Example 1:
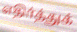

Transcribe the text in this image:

எதிர்த்துக்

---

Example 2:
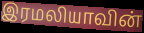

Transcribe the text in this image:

இரமலியாவின்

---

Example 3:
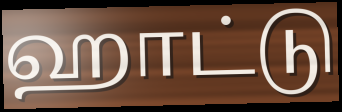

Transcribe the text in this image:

ஹாட்டு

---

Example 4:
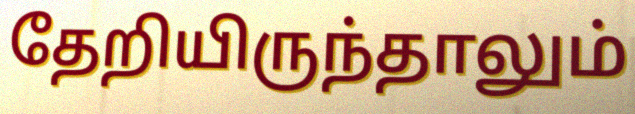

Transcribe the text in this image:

தேறியிருந்தாலும்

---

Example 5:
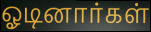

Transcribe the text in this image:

ஓடினார்கள்